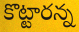
కొట్టారన్న